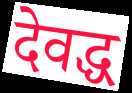
देवद्ध